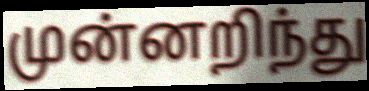
முன்னறிந்து